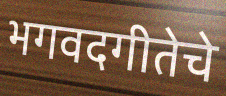
भगवदगीतेचे